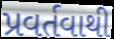
પ્રવર્તવાથી